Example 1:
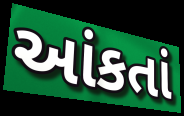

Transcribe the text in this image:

આંકતાં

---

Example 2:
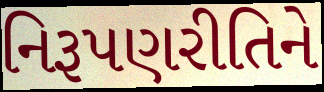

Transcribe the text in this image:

નિરૂપણરીતિને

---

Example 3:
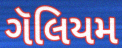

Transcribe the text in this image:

ગૅલિયમ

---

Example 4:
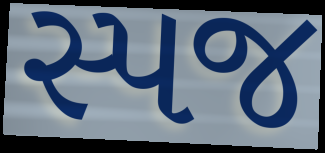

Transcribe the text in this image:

સ્પજ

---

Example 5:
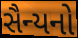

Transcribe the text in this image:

સૈન્યનો